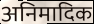
अनिमादिक